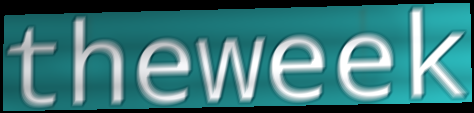
theweek